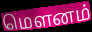
மெளனம்